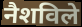
नैशविले